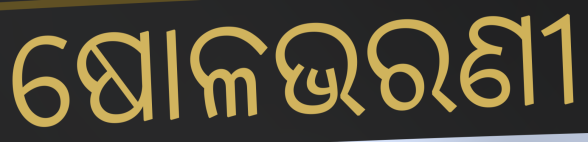
ଷୋଳଭରଣୀ